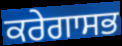
ਕਰੇਗਾਸਭ